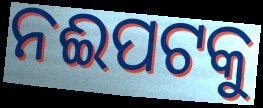
ନଈପଟକୁ